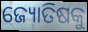
ଜ୍ୟୋତିଷକୁ